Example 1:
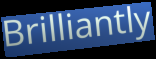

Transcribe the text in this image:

Brilliantly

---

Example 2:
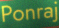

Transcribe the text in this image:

Ponraj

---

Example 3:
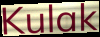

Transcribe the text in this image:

Kulak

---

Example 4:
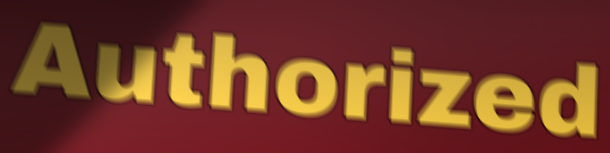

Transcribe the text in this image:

Authorized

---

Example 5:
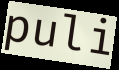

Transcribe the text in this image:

puli